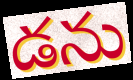
డను